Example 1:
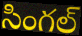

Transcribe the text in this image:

సింగల్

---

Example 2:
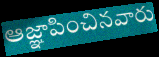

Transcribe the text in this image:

ఆజ్ఞాపించినవారు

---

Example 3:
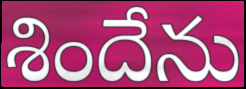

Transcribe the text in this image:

శిందేను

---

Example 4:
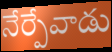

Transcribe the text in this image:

నేర్పేవాడు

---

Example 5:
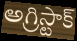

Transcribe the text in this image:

అగ్రిస్టాక్